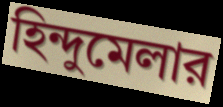
হিন্দুমেলার